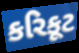
કરિકૂટ